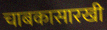
चाबकासारखी